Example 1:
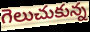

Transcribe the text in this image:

గెలుచుకున్న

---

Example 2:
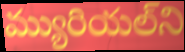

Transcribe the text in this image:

మ్యురియల్‌ని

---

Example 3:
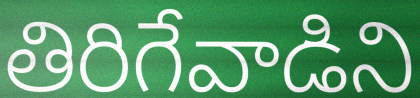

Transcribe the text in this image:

తిరిగేవాడిని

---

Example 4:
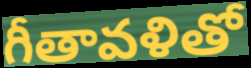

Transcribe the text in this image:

గీతావళితో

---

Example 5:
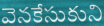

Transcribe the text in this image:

వెనకేసుకుని